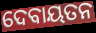
ଦେବାୟତନ